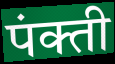
पंक्ती